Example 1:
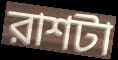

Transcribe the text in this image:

রাশটা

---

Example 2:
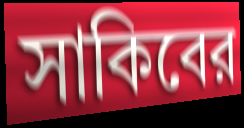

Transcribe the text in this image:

সাকিবের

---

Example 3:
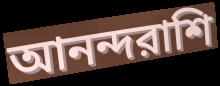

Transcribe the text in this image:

আনন্দরাশি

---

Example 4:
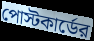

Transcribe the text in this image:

পোস্টকার্ডের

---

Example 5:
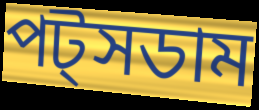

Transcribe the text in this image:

পট্‌সডাম